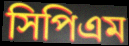
সিপিএম